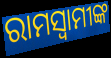
ରାମସ୍ୱାମୀଙ୍କ